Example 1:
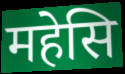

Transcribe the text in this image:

महेसि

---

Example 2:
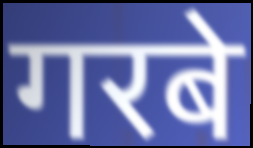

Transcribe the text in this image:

गरबे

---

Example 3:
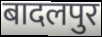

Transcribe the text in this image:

बादलपुर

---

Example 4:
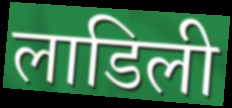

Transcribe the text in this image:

लाडिली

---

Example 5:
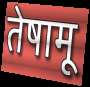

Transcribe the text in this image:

तेषामू